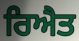
ਰਿਐਤ